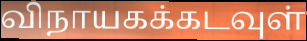
விநாயகக்கடவுள்